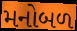
મનોબળ